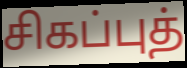
சிகப்புத்